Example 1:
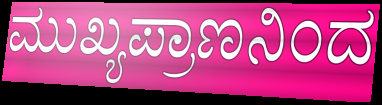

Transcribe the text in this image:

ಮುಖ್ಯಪ್ರಾಣನಿಂದ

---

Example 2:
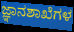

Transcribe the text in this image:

ಜ್ಞಾನಶಾಖೆಗಳ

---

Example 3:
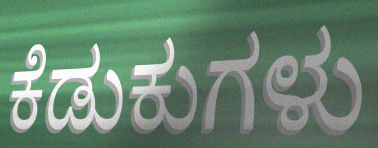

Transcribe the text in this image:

ಕೆಡುಕುಗಳು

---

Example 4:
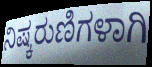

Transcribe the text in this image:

ನಿಷ್ಕರುಣಿಗಳಾಗಿ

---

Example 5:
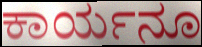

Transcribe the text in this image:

ಕಾರ್ಯನೂ